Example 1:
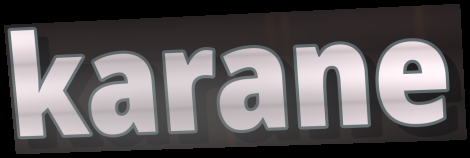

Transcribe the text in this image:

karane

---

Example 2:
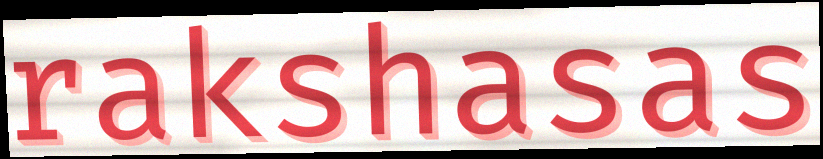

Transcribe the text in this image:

rakshasas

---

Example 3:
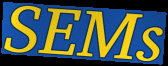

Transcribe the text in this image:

SEMs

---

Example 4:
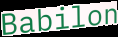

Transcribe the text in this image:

Babilon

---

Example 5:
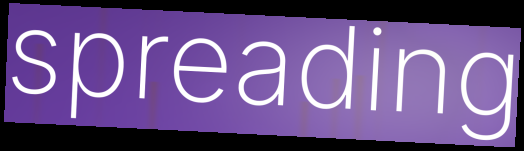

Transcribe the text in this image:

spreading